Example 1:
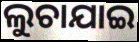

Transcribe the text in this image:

ଲୁଚାଯାଇ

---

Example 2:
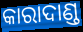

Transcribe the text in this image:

କାରାଦାଣ୍ଡ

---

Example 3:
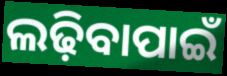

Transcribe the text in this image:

ଲଢ଼ିବାପାଇଁ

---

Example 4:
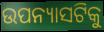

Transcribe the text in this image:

ଉପନ୍ୟାସଟିକୁ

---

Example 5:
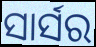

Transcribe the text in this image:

ସାର୍ସର